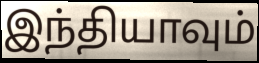
இந்தியாவும்